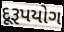
દૂરૂપયોગ